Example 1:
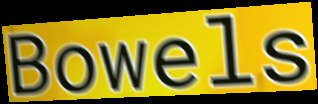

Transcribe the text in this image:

Bowels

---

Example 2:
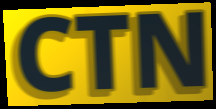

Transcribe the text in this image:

CTN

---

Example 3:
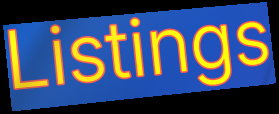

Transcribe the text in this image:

Listings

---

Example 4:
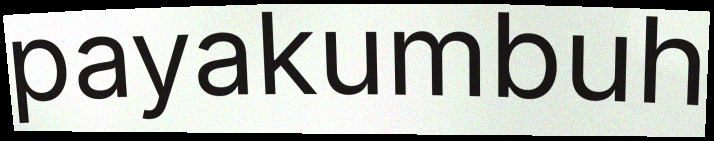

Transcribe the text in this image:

payakumbuh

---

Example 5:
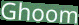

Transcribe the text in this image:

Ghoom